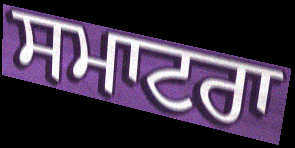
ਸਮਾਟਰਾ